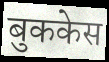
बुककेस